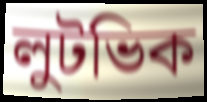
লুটভিক